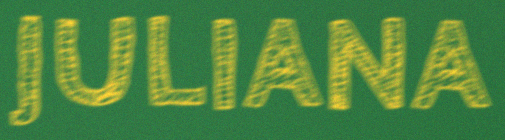
JULIANA